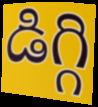
డిగ్గి